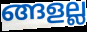
ങ്ങളല്ല